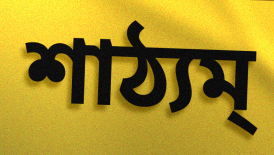
শাঠ্যম্